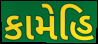
કામેહિ